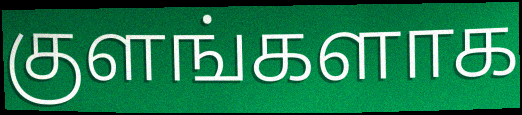
குளங்களாக